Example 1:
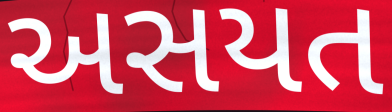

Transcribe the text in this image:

અસયત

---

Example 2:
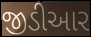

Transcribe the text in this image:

જીડીઆર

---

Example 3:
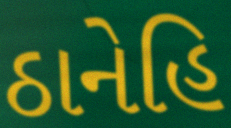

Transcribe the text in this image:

ઠાનેહિ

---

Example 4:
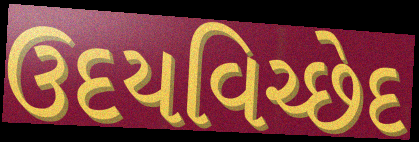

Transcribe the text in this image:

ઉદયવિચ્છેદ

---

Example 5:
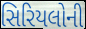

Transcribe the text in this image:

સિરિયલોની